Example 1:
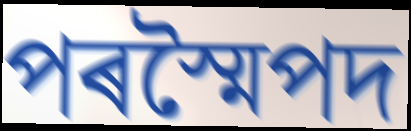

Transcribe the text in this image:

পৰস্মৈপদ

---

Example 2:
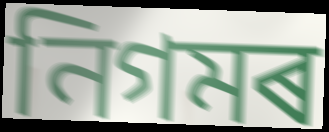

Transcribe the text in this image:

নিগমৰ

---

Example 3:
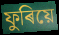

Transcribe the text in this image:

ফুৰিয়ে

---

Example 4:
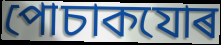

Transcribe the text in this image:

পোচাকযোৰ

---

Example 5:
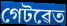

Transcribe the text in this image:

গেটৱেত